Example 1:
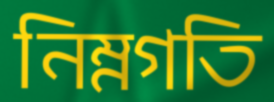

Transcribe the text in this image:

নিম্নগতি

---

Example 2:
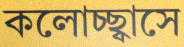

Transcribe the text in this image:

কলোচ্ছ্বাসে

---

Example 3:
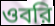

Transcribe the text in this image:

ওবরি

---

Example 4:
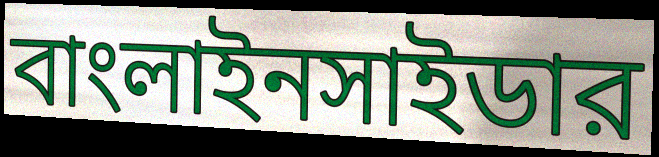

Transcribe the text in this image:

বাংলাইনসাইডার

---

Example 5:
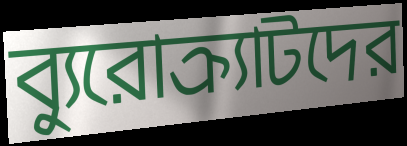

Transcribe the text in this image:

ব্যুরোক্র্যাটদের